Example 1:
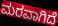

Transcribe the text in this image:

ಮರವಾಗಿದೆ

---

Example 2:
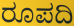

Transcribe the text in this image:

ರೂಪದಿ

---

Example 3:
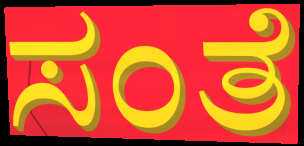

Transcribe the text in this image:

ಸಂತೆ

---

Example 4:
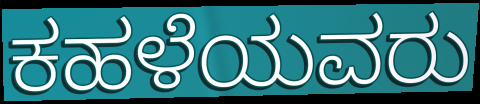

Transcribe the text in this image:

ಕಹಳೆಯವರು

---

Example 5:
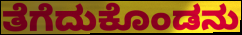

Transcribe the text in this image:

ತೆಗೆದುಕೊಂಡನು